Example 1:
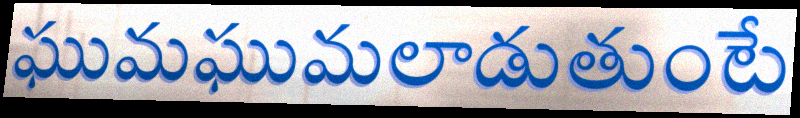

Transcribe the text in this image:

ఘుమఘుమలాడుతుంటే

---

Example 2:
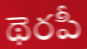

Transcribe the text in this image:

థెరపీ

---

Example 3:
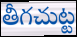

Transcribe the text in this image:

తీగచుట్ట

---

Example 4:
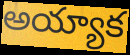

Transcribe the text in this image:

అయ్యాక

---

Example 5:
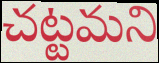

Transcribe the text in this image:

చట్టమని